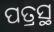
ପତ୍ରସ୍ଥ